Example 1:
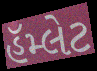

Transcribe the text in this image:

હૅમ્લેટ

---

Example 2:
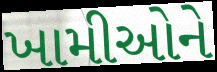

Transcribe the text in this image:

ખામીઓને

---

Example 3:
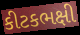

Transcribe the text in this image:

કીટકભક્ષી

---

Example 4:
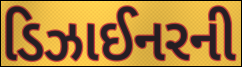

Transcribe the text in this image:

ડિઝાઈનરની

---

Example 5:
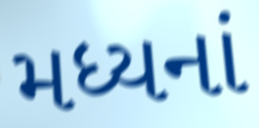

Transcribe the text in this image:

મધ્યનાં